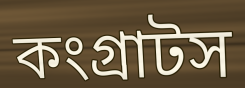
কংগ্রাটস